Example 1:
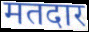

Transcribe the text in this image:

मतदार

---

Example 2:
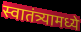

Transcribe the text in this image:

स्वातंत्र्यामध्ये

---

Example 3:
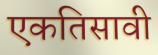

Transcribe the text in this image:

एकतिसावी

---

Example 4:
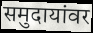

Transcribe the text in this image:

समुदायांवर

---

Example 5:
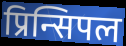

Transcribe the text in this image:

प्रिन्सिपल